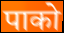
पाको